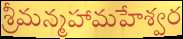
శ్రీమన్మహామహేశ్వర